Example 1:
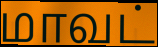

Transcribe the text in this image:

மாவட்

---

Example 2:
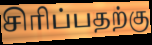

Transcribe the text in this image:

சிரிப்பதற்கு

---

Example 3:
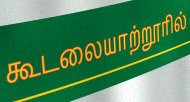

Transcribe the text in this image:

கூடலையாற்றூரில்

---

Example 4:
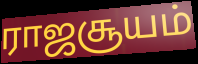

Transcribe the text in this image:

ராஜசூயம்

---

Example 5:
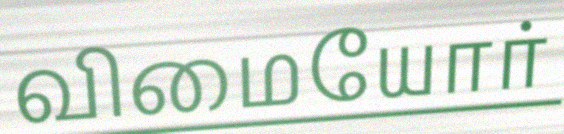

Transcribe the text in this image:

விமையோர்